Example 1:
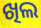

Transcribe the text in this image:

ଖିଲ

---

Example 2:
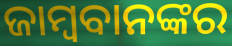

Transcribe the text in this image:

ଜାମ୍ବବାନଙ୍କର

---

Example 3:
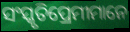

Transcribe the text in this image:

ସଂସ୍କୃତିପ୍ରେମୀମାନେ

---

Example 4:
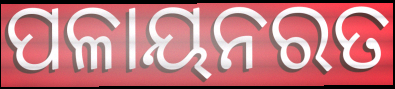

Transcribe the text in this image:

ପଳାୟନରତ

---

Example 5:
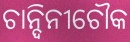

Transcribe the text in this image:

ଚାନ୍ଦିନୀଚୌକ